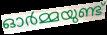
ഓർമ്മയുണ്ട്